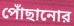
পোঁছানোর